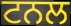
ਟਨਲ